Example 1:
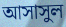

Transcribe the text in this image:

আসাসুল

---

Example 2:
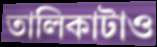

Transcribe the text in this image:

তালিকাটাও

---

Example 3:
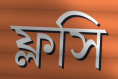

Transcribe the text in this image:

ফ্লসি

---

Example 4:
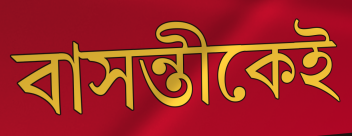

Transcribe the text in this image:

বাসন্তীকেই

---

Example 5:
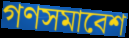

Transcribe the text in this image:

গণসমাবেশ